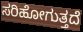
ಸರಿಹೋಗುತ್ತದೆ